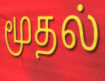
மூதல்